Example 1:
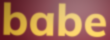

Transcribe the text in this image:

babe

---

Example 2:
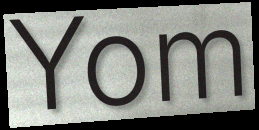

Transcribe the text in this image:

Yom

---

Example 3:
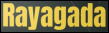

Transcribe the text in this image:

Rayagada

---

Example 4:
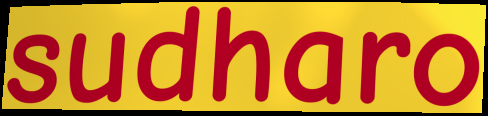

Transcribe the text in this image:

sudharo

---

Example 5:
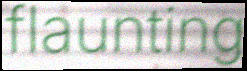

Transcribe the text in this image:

flaunting